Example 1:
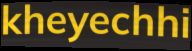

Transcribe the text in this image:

kheyechhi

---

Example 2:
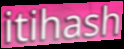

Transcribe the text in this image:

itihash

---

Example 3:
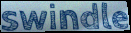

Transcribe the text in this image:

swindle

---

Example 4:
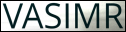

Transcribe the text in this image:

VASIMR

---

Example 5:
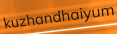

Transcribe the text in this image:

kuzhandhaiyum